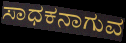
ಸಾಧಕನಾಗುವ